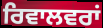
ਰਿਵਾਲਵਰਾਂ